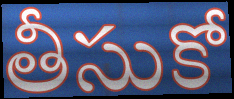
తీసుకో